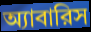
অ্যাবারিস